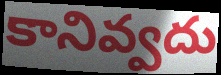
కానివ్వదు